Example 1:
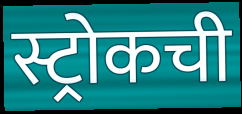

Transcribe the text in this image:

स्ट्रोकची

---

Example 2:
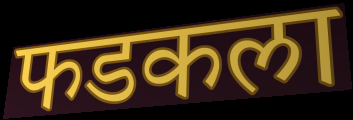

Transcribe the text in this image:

फडकला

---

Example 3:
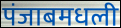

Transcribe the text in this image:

पंजाबमधली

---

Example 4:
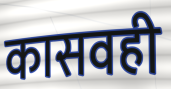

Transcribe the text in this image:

कासवही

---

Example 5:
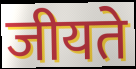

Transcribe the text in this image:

जीयते